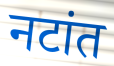
नटांत